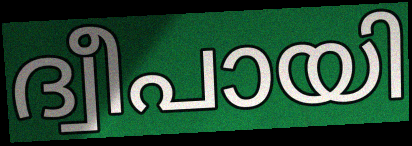
ദ്വീപായി